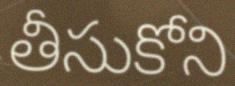
తీసుకోని